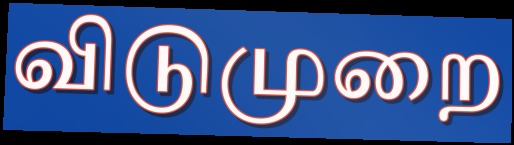
விடுமுறை